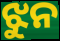
ଝୁନ